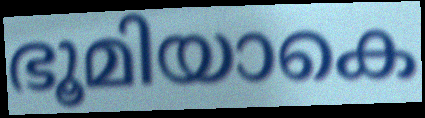
ഭൂമിയാകെ